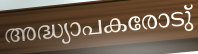
അദ്ധ്യാപകരോടു്